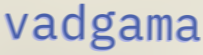
vadgama